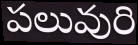
పలువురి